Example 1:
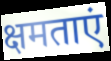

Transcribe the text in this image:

क्षमताएं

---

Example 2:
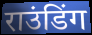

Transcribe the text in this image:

राउंडिंग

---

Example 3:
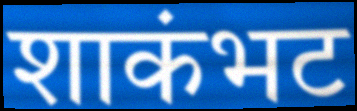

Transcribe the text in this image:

शाकंभट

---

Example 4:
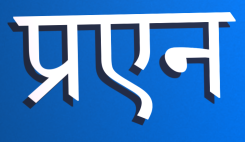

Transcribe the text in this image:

प्रएन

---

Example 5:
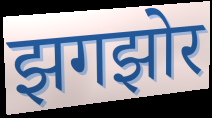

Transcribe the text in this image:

झगझोर